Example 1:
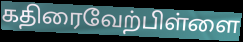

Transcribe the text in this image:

கதிரைவேற்பிள்ளை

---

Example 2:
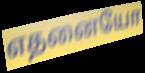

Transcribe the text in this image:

எதனையோ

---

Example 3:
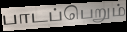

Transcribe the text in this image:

பாடப்பெறும்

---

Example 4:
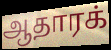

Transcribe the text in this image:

ஆதாரக்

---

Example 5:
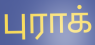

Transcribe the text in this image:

புராக்